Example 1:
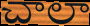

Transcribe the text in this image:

చాలా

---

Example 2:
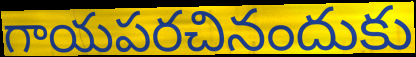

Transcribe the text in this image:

గాయపరచినందుకు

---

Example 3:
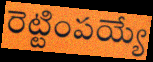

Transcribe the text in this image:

రెట్టింపయ్యే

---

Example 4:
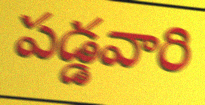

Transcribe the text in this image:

పడ్డవారి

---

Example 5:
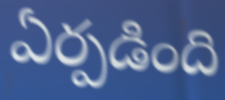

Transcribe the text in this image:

ఏర్పడింది